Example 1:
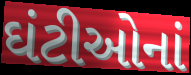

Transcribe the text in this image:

ઘંટીઓનાં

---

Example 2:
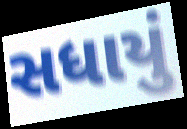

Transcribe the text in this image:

સધાયું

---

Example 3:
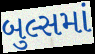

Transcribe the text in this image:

બુલ્સમાં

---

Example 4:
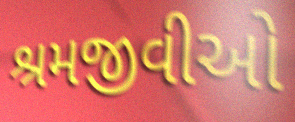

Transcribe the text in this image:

શ્રમજીવીઓ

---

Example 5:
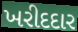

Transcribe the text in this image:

ખરીદદાર